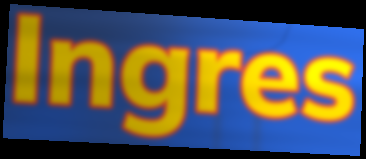
Ingres